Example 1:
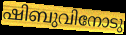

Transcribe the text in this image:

ഷിബുവിനോടു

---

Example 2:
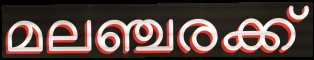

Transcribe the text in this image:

മലഞ്ചരക്ക്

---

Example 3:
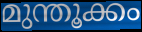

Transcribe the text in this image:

മുന്തൂക്കം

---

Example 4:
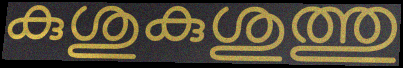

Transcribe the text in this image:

കുശുകുശുത്തു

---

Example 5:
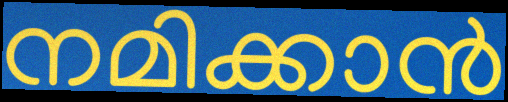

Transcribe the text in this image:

നമിക്കാൻ